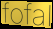
fofal